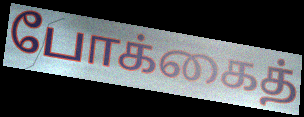
போக்கைத்